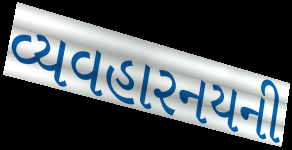
વ્યવહારનયની